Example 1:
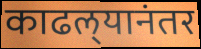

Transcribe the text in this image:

काढल्यानंतर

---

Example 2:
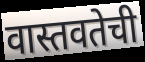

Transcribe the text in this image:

वास्तवतेची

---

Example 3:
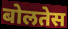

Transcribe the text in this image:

बोलतेस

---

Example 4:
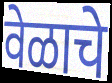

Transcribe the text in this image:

वेळाचे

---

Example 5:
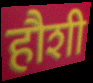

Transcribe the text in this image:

हौशी